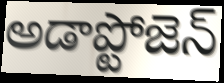
అడాప్టోజెన్